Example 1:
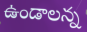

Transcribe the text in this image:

ఉండాలన్న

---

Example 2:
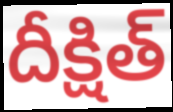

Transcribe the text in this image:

దీక్షిత్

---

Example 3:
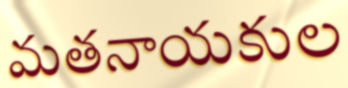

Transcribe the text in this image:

మతనాయకుల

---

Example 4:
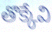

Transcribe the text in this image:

తొక్కేవి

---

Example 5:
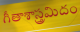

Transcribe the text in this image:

గీతాశాస్త్రమిదం